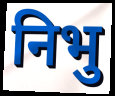
निभु